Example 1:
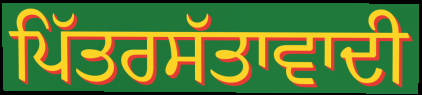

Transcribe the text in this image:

ਪਿੱਤਰਸੱਤਾਵਾਦੀ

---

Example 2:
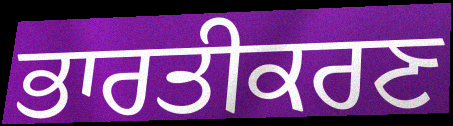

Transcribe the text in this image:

ਭਾਰਤੀਕਰਣ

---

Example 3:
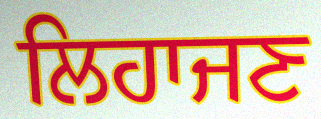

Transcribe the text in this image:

ਲਿਹਾਜਣ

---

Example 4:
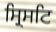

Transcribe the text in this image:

ਸ੍ਰਿਸਟਿ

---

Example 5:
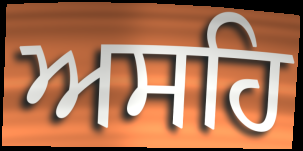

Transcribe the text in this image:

ਅਸਹਿ